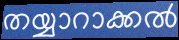
തയ്യാറാക്കൽ